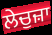
ਲੇਚੁਜ਼ਾ